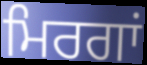
ਮਿਰਗਾਂ